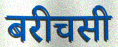
बरीचसी